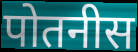
पोतनीस